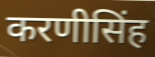
करणीसिंह